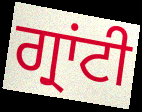
ਗ੍ਰਾਂਟੀ